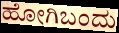
ಹೋಗಿಬಂದು